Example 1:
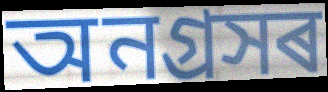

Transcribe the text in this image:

অনগ্ৰসৰ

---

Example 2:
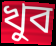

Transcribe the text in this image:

খুব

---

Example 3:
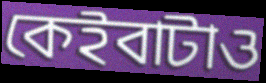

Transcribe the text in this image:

কেইবাটাও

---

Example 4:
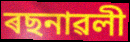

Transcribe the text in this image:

ৰছনাৱলী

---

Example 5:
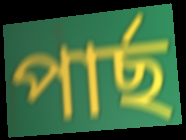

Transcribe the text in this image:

পাৰ্ছ